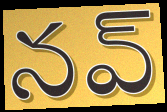
నవ్